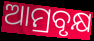
ଆମ୍ରବୃକ୍ଷ